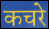
कचरे